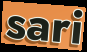
sari